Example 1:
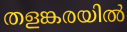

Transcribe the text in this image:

തളങ്കരയിൽ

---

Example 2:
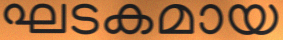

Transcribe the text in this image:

ഘടകമായ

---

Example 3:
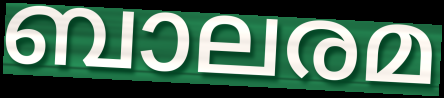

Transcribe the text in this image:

ബാലരമ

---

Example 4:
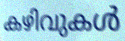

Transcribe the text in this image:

കഴിവുകൾ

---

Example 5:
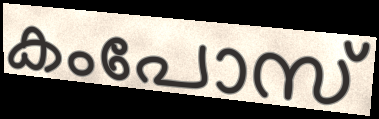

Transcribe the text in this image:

കംപോസ്